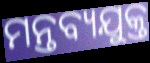
ମନ୍ତବ୍ୟଯୁକ୍ତ